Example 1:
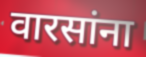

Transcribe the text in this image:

वारसांना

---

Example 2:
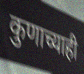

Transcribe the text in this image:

कुणाच्याही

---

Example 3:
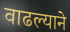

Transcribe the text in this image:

वाढल्याने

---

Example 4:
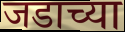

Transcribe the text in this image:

जडाच्या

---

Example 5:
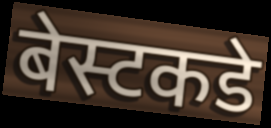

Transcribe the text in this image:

बेस्टकडे